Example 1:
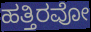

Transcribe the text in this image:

ಹತ್ತಿರವೋ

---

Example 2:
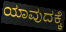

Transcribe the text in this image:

ಯಾವುದಕ್ಕೆ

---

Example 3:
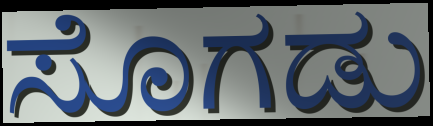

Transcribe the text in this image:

ಸೊಗಡು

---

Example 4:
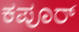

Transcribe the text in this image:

ಕಪೂರ್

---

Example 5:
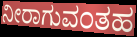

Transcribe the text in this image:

ನೀರಾಗುವಂತಹ